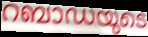
റബാഡയുടെ